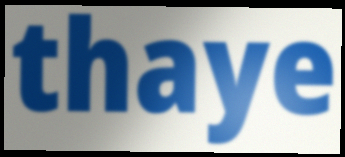
thaye